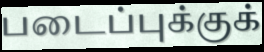
படைப்புக்குக்